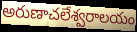
అరుణాచలేశ్వరాలయం